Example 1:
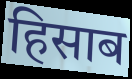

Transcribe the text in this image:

हिसाब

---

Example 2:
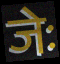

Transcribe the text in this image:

जेः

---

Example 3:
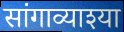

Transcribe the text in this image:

सांगाव्याश्या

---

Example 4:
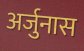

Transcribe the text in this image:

अर्जुनास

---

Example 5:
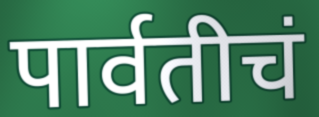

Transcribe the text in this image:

पार्वतीचं